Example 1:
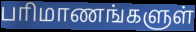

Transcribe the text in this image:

பரிமாணங்களுள்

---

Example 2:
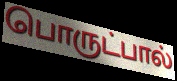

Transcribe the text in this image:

பொருட்பால்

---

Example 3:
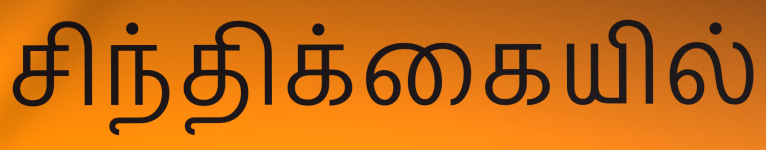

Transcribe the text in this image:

சிந்திக்கையில்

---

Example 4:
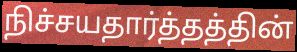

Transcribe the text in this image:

நிச்சயதார்த்தத்தின்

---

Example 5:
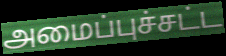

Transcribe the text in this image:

அமைப்புச்சட்ட